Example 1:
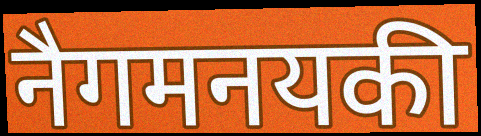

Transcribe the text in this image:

नैगमनयकी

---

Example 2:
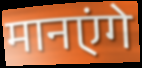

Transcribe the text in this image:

मानएंगे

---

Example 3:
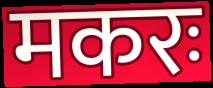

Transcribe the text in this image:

मकरः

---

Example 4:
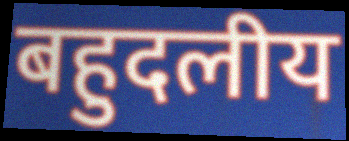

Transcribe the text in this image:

बहुदलीय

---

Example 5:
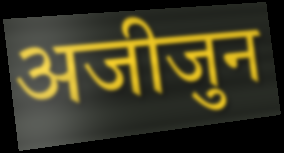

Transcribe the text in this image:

अजीजुन